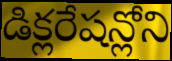
డిక్లరేషన్లోని